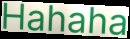
Hahaha